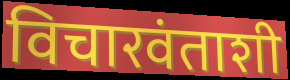
विचारवंताशी